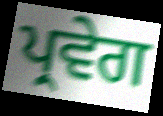
ਪ੍ਰਵੇਗ